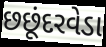
છછૂંદરવેડા